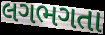
લગભગતા